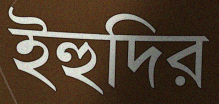
ইহুদির